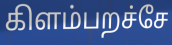
கிளம்பறச்சே